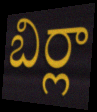
బిర్లా